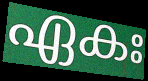
ഏകഃ